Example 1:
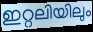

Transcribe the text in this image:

ഇറ്റലിയിലും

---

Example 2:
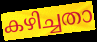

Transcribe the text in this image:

കഴിച്ചതാ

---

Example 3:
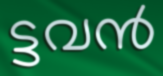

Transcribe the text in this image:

ട്ടവൻ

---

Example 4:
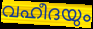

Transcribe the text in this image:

വഹീദയും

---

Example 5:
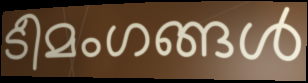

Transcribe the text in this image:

ടീമംഗങ്ങൾ